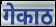
गेकाठ